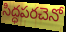
సిద్ధపరచెనో